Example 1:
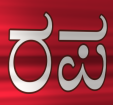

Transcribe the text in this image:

ರಪ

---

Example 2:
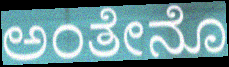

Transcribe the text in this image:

ಅಂತೇನೊ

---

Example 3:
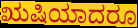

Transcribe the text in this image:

ಋಷಿಯಾದರೂ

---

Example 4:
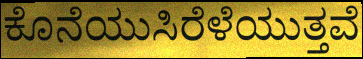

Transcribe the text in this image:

ಕೊನೆಯುಸಿರೆಳೆಯುತ್ತವೆ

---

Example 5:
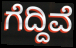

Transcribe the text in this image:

ಗೆದ್ದಿವೆ